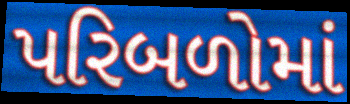
પરિબળોમાં